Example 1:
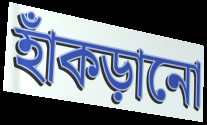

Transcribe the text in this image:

হাঁকড়ানো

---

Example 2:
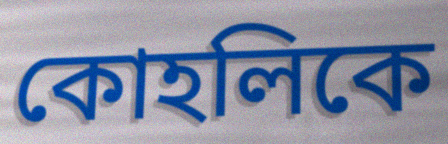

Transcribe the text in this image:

কোহলিকে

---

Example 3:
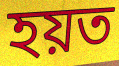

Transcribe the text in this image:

হয়ত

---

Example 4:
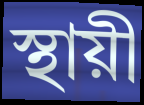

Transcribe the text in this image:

স্থায়ী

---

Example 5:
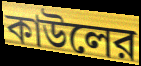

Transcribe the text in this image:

কাউলের